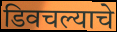
डिवचल्याचे